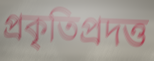
প্রকৃতিপ্রদত্ত